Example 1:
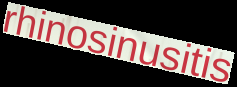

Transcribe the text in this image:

rhinosinusitis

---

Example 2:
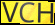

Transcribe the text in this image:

VCH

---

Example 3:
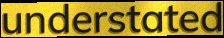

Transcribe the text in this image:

understated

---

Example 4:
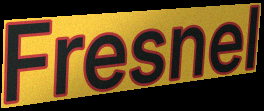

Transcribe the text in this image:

Fresnel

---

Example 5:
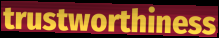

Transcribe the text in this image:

trustworthiness